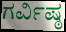
ಗರ್ವಿಷ್ಠ